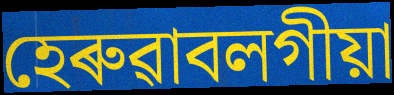
হেৰুৱাবলগীয়া